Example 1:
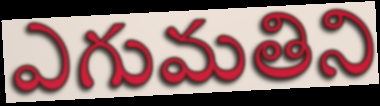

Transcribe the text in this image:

ఎగుమతిని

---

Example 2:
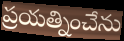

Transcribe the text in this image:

ప్రయత్నించేను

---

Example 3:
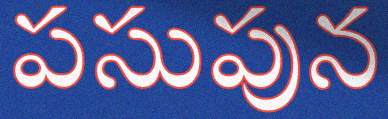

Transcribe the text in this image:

పసుపున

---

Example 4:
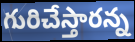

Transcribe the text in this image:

గురిచేస్తారన్న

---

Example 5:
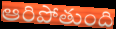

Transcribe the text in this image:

ఆరిపోతుంది